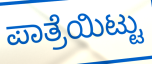
ಪಾತ್ರೆಯಿಟ್ಟು